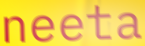
neeta